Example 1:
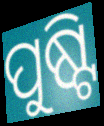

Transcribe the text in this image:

ପୁଷ୍ଟି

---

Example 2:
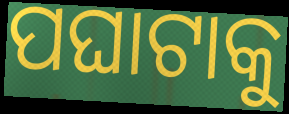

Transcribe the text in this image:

ପଘାଟାକୁ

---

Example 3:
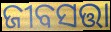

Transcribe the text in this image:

ଜୀବସତ୍ତା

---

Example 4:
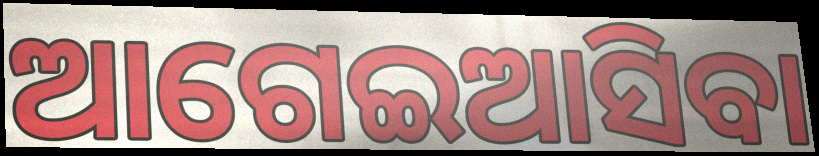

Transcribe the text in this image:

ଆଗେଇଆସିବା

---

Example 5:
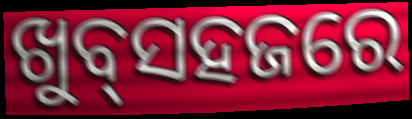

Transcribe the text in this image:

ଖୁବ୍‌ସହଜରେ